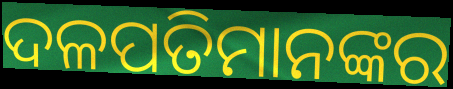
ଦଳପତିମାନଙ୍କର